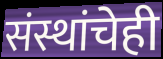
संस्थांचेही